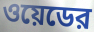
ওয়েডের